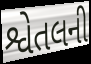
શ્વેતલની